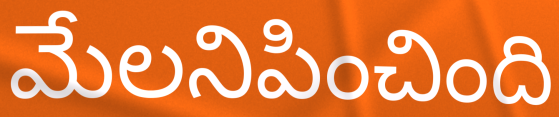
మేలనిపించింది